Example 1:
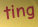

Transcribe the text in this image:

ting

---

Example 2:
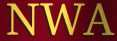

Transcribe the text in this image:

NWA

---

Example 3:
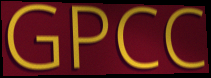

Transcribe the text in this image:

GPCC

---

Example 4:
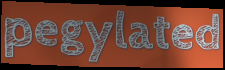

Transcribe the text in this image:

pegylated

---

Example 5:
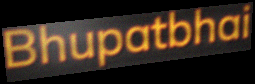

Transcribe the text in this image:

Bhupatbhai